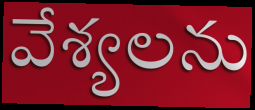
వేశ్యలను